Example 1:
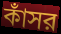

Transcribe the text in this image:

কাঁসর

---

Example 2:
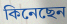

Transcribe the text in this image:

কিনেছেন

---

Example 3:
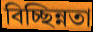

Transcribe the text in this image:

বিচ্ছিন্নতা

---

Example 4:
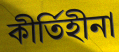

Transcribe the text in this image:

কীর্তিহীনা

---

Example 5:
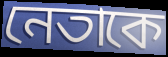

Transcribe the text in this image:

নেতাকে